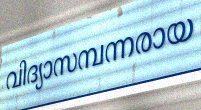
വിദ്യാസമ്പന്നരായ